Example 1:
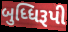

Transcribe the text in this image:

બુધ્ધિરૂપી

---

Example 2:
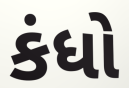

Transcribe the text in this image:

કંધો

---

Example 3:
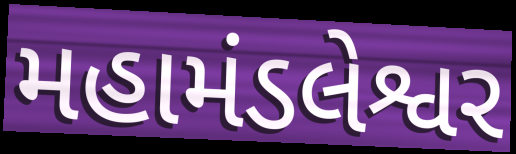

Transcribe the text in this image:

મહામંડલેશ્વર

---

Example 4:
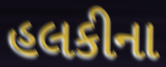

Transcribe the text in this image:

હલકીના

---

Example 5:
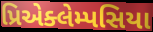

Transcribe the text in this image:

પ્રિએક્લેમ્પસિયા